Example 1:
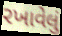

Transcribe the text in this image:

રખાવેલું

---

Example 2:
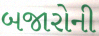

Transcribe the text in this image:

બજારોની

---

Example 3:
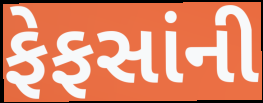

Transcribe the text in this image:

ફેફસાંની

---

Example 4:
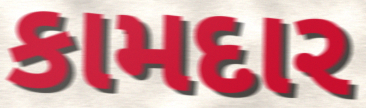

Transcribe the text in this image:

કામદાર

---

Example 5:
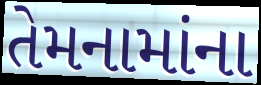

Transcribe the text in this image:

તેમનામાંના